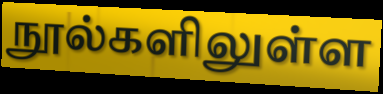
நூல்களிலுள்ள